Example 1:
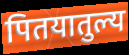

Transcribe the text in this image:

पितयातुल्य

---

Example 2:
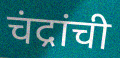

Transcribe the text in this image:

चंद्रांची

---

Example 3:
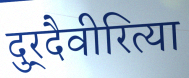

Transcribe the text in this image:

दुर्दैवीरित्या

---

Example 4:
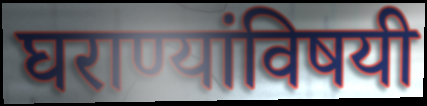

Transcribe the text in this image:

घराण्यांविषयी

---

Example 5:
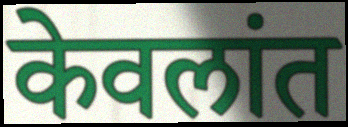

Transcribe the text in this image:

केवलांत